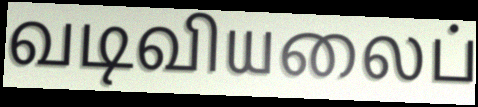
வடிவியலைப்